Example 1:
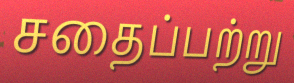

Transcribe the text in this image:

சதைப்பற்று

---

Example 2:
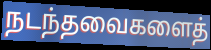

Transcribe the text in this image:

நடந்தவைகளைத்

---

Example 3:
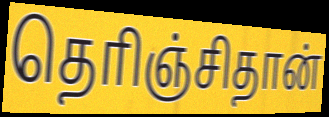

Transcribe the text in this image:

தெரிஞ்சிதான்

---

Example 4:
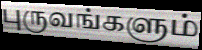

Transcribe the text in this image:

புருவங்களும்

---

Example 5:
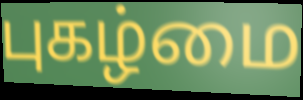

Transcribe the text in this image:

புகழ்மை